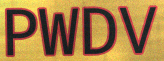
PWDV